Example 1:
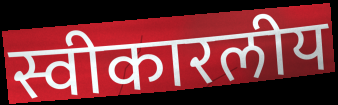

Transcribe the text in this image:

स्वीकारलीय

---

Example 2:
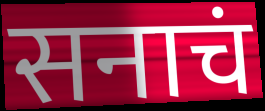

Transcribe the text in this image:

सनाचं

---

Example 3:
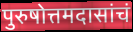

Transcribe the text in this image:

पुरुषोत्तमदासांचं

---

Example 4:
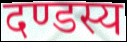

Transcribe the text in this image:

दण्डस्य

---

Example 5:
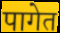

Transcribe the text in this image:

पागेत